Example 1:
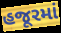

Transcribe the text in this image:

હજૂરમાં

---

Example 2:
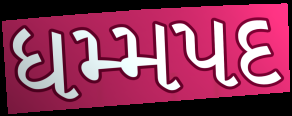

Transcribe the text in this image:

ધમ્મપદ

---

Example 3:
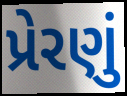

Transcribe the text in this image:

પ્રેરણું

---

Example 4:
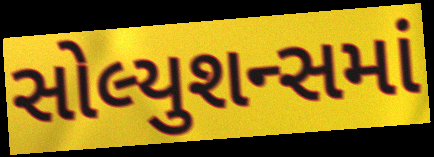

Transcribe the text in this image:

સોલ્યુશન્સમાં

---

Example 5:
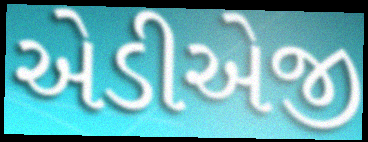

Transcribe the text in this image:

એડીએજી